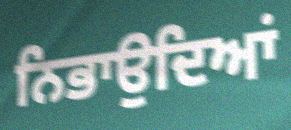
ਨਿਭਾਉਦਿਆਂ